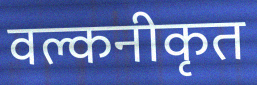
वल्कनीकृत